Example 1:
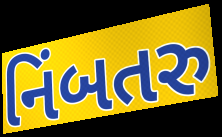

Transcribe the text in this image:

નિંબતરુ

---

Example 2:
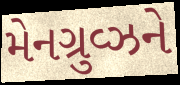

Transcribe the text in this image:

મેનગ્રુવ્ઝને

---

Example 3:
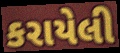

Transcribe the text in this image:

કરાયેલી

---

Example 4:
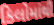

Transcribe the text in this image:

કિલોમાંથી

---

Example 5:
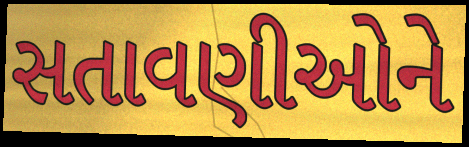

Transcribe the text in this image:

સતાવણીઓને